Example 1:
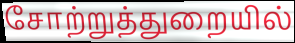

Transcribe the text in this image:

சோற்றுத்துறையில்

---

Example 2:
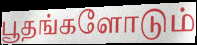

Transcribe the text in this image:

பூதங்களோடும்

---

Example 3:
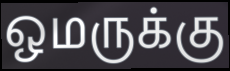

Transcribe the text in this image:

ஒமருக்கு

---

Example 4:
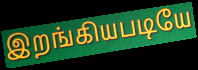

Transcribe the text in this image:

இறங்கியபடியே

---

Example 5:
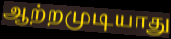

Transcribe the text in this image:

ஆற்றமுடியாது